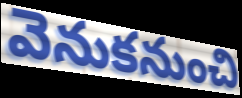
వెనుకనుంచి